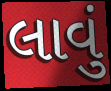
લાવું